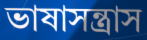
ভাষাসন্ত্রাস